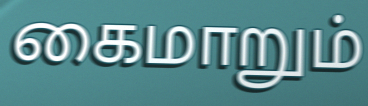
கைமாறும்